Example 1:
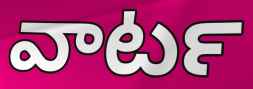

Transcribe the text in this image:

వాటర్‍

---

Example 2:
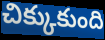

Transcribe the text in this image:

చిక్కుకుంది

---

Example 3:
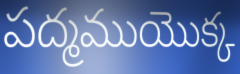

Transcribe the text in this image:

పద్మముయొక్క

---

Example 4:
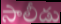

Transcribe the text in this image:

సాలీడు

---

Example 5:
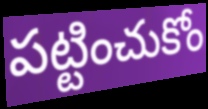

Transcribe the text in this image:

పట్టించుకోం